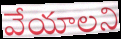
వేయాలని